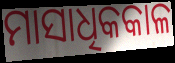
ମାସାଧିକକାଳ